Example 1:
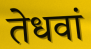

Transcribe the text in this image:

तेधवां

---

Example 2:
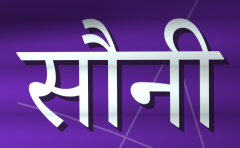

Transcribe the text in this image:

सौनी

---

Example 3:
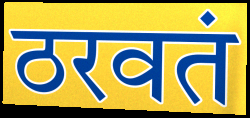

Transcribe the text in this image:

ठरवतं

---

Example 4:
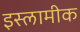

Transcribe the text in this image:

इस्लामीक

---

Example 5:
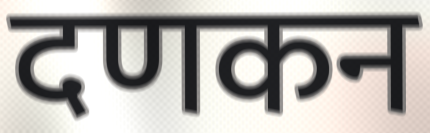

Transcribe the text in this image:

दणकन